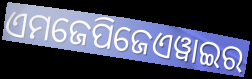
ଏମଜେପିଜେଏୱାଇର